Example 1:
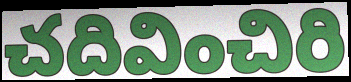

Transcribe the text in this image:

చదివించిరి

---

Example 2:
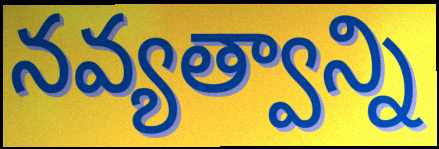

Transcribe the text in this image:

నవ్యత్వాన్ని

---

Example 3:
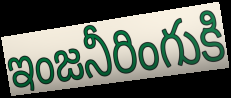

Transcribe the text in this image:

ఇంజనీరింగుకి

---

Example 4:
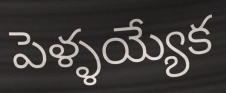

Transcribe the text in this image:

పెళ్ళయ్యేక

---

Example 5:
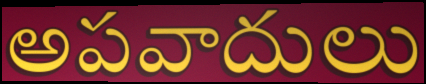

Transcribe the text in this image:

అపవాదులు